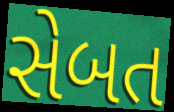
સેબત